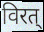
विरत्